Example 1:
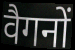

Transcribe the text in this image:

वैगनों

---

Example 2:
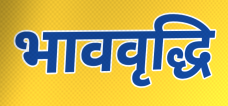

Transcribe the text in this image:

भाववृद्धि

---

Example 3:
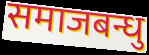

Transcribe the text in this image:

समाजबन्धु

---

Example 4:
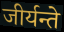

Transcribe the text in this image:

जीर्यन्ते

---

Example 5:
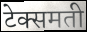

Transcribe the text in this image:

टेक्समती